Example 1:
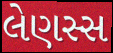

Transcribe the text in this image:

લેણસ્સ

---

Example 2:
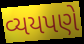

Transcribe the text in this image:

વ્યયપણે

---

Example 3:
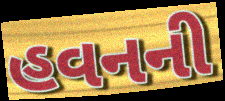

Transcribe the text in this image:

હવનની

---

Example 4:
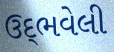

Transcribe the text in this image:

ઉદ્‌ભવેલી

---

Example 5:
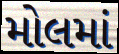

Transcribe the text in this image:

મોલમાં